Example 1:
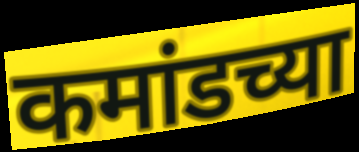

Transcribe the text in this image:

कमांडच्या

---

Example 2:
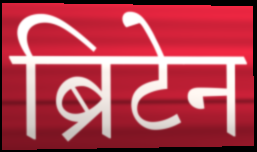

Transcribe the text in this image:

ब्रिटेन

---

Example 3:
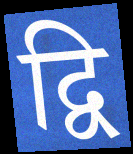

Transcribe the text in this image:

द्वि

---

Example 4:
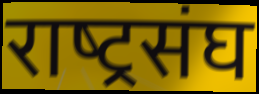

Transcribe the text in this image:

राष्ट्रसंघ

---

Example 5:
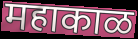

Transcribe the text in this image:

महाकाळ